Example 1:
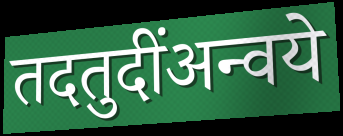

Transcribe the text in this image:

तदतुदींअन्वये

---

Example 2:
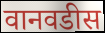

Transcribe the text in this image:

वानवडीस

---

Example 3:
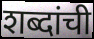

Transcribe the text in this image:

शब्दांची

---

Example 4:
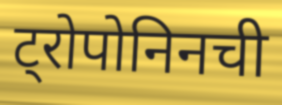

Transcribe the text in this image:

ट्रोपोनिनची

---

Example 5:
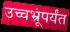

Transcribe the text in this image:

उच्चभ्रूंपर्यंत